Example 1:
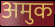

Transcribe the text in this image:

अमुक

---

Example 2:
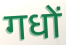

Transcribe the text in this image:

गधों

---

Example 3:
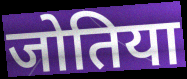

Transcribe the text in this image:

जोतिया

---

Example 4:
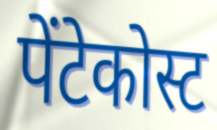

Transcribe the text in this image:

पेंटेकोस्ट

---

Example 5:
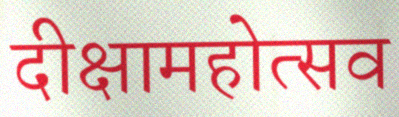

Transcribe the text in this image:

दीक्षामहोत्सव